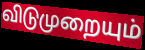
விடுமுறையும்